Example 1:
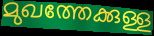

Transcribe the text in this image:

മുഖത്തേക്കുള്ള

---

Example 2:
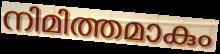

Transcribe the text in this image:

നിമിത്തമാകും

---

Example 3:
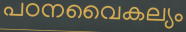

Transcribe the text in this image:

പഠനവൈകല്യം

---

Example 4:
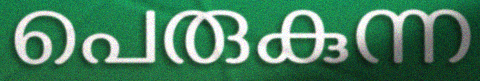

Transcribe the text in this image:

പെരുകുന്ന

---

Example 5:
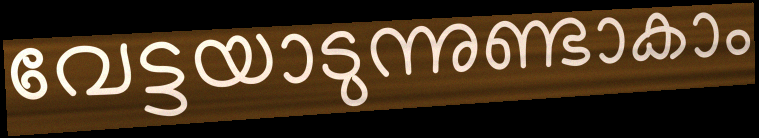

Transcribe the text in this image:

വേട്ടയാടുന്നുണ്ടാകാം